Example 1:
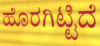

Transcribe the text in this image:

ಹೊರಗಿಟ್ಟಿದೆ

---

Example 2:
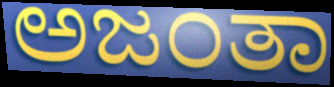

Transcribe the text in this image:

ಅಜಂತಾ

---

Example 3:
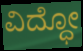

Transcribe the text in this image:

ವಿದ್ಧೋ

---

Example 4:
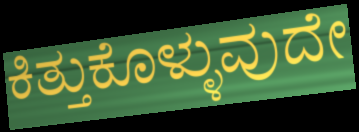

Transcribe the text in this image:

ಕಿತ್ತುಕೊಳ್ಳುವುದೇ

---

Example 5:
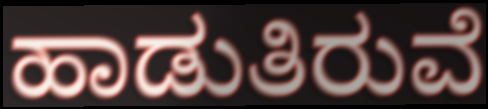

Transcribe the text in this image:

ಹಾಡುತಿರುವೆ